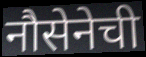
नौसेनेची